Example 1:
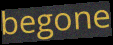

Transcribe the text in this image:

begone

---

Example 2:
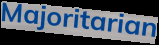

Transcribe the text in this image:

Majoritarian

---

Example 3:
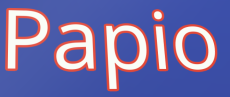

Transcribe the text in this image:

Papio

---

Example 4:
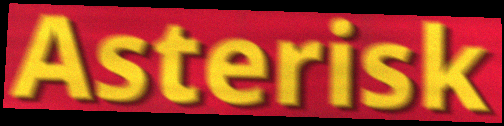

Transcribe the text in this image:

Asterisk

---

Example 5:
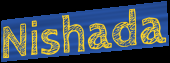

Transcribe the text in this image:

Nishada